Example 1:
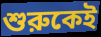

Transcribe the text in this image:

শুরুকেই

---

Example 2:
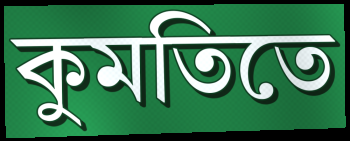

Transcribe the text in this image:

কুমতিতে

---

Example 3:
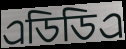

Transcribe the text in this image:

এডিডিএ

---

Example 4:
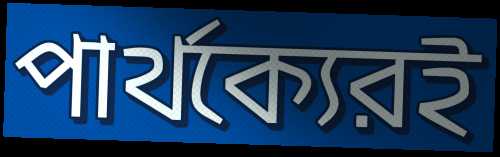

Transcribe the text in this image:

পার্থক্যেরই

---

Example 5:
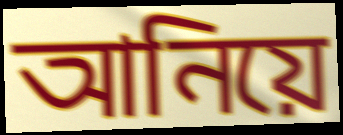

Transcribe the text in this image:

আনিয়ে